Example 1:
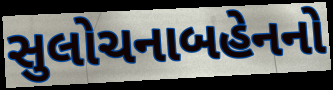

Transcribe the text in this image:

સુલોચનાબહેનનો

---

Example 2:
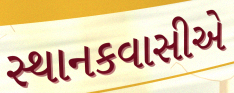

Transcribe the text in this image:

સ્થાનકવાસીએ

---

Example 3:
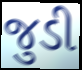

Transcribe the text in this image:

જુડી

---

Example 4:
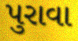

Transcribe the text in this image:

પુરાવા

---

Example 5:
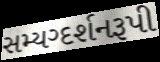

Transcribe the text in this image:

સમ્યગ્દર્શનરૂપી